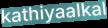
kathiyaalkal